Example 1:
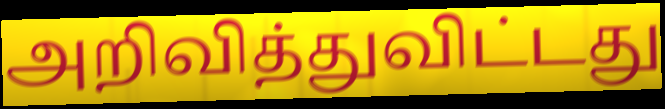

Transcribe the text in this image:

அறிவித்துவிட்டது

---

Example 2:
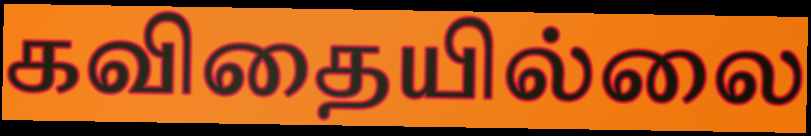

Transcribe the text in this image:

கவிதையில்லை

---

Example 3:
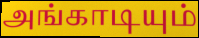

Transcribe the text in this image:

அங்காடியும்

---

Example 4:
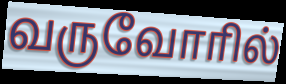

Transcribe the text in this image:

வருவோரில்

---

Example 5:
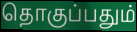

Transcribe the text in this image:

தொகுப்பதும்